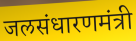
जलसंधारणमंत्री